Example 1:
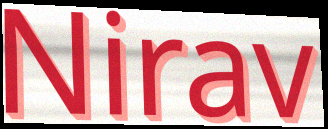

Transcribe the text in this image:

Nirav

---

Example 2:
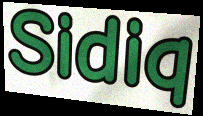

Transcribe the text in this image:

Sidiq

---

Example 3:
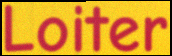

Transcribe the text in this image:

Loiter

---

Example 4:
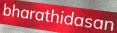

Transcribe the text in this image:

bharathidasan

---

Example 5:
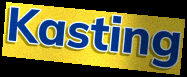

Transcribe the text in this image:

Kasting